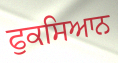
ਫੁਕਸਿਆਨ